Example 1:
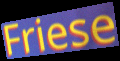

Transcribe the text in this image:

Friese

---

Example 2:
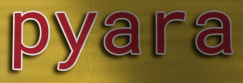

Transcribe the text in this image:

pyara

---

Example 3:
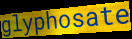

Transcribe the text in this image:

glyphosate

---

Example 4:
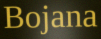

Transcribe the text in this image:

Bojana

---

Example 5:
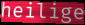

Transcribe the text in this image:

heilige